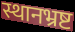
स्थानभ्रष्ट